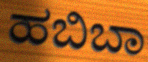
ಹಬಿಬಾ